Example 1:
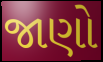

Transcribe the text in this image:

જાણો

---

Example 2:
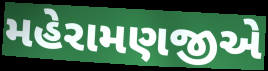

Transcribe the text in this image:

મહેરામણજીએ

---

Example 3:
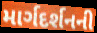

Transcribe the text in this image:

માર્ગદર્શનની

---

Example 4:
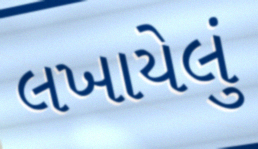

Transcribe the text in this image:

લખાયેલું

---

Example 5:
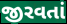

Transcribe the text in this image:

જીરવતાં